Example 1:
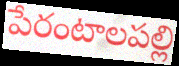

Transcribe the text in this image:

పేరంటాలపల్లి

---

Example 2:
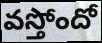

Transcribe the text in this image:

వస్తోందో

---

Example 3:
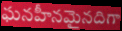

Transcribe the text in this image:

ఘనహీనమైనదిగా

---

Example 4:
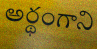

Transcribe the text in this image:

అర్థంగాని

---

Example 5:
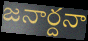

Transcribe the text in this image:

జనార్దనా